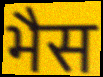
भैस